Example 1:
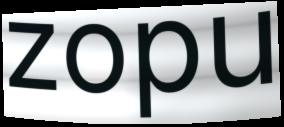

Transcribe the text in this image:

zopu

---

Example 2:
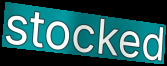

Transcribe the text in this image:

stocked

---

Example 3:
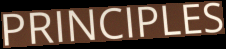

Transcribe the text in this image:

PRINCIPLES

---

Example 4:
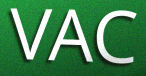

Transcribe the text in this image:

VAC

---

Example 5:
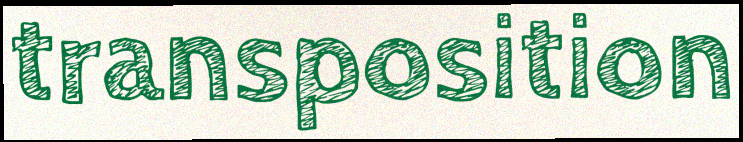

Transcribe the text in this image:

transposition